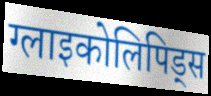
ग्लाइकोलिपिड्स